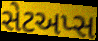
સેટઅપ્સ